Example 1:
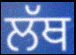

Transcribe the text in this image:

ਲੱਥ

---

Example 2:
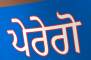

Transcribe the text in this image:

ਪੇਰੇਗੋ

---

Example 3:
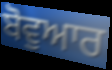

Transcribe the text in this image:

ਬੋਵੁਆਰ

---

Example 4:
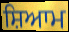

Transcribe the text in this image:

ਸ਼ਿਆਮ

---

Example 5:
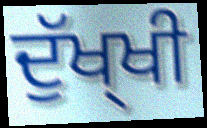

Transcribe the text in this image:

ਦੁੱਖ੍ਖੀ